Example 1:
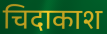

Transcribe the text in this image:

चिदाकाश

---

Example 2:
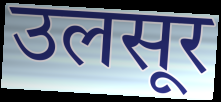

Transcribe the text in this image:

उलसूर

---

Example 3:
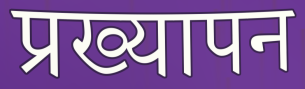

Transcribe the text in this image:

प्रख्यापन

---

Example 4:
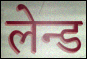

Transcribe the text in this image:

लेन्ड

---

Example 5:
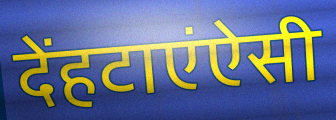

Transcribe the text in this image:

देंहटाएंऐसी